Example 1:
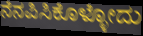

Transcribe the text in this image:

ನೆನಪಿಸಿಕೊಳ್ಳೋದು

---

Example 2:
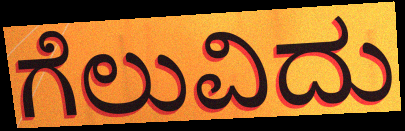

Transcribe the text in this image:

ಗೆಲುವಿದು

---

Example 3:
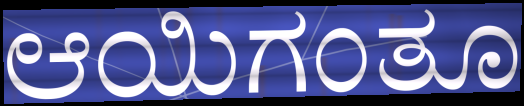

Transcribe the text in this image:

ಆಯಿಗಂತೂ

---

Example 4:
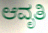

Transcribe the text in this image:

ಆವೃತಿ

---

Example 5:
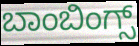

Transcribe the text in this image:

ಬಾಂಬಿಂಗ್ಸ್